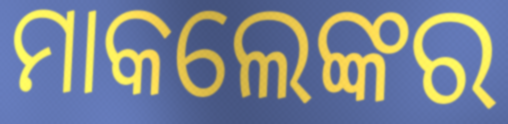
ମାକଲେଙ୍କର